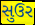
સુઉર